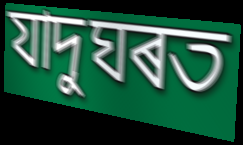
যাদুঘৰত